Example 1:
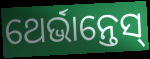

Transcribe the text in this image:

ଥେର୍ଭାନ୍ତେସ୍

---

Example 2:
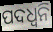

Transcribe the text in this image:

ପଦଧ୍ଵନି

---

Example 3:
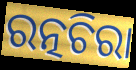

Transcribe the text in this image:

ରତ୍ନଚିରା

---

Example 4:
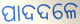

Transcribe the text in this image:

ପାଦଦଳେ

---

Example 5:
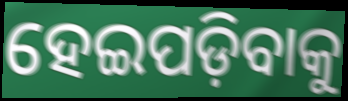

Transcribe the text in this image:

ହେଇପଡ଼ିବାକୁ